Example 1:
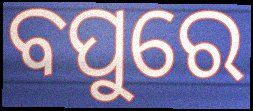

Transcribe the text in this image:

ବପୁରେ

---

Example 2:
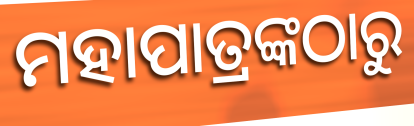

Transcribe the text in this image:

ମହାପାତ୍ରଙ୍କଠାରୁ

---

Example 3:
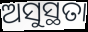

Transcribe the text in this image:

ଅସୁସ୍ଥତା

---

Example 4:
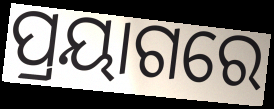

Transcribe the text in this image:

ପ୍ରୟାଗରେ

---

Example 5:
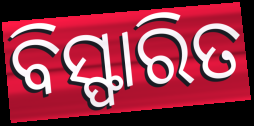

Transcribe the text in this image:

ବିସ୍ଫାରିତ